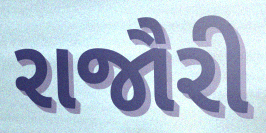
રાજૌરી